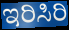
ಇರಿಸಿರಿ